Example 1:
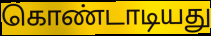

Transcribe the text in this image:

கொண்டாடியது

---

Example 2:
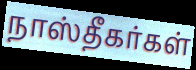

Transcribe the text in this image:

நாஸ்தீகர்கள்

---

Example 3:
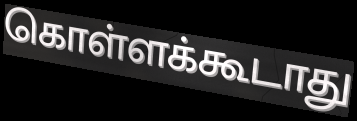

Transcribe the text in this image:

கொள்ளக்கூடாது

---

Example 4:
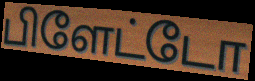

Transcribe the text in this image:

பிளேட்டோ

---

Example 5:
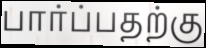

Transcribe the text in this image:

பார்ப்பதற்கு